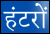
हंटरों